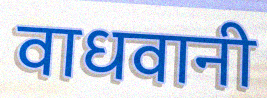
वाधवानी